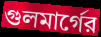
গুলমার্গের